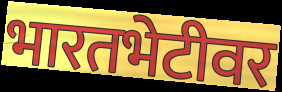
भारतभेटीवर